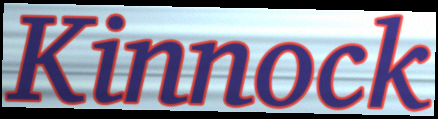
Kinnock